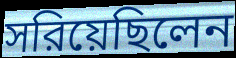
সরিয়েছিলেন